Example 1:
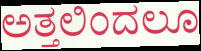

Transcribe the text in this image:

ಅತ್ತಲಿಂದಲೂ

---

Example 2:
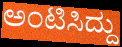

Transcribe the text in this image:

ಅಂಟಿಸಿದ್ದು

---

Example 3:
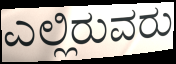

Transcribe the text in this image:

ಎಲ್ಲಿರುವರು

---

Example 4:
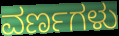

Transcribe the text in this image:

ವರ್ಣಗಳು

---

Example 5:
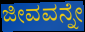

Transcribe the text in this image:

ಜೀವವನ್ನೇ